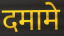
दमामे